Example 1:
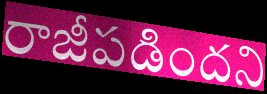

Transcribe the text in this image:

రాజీపడిందని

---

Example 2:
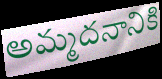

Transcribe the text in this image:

అమ్మదనానికి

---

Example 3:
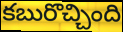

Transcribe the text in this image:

కబురొచ్చింది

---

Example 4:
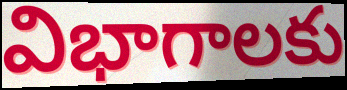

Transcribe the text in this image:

విభాగాలకు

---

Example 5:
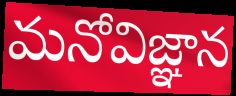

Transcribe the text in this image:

మనోవిజ్ఞాన